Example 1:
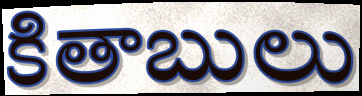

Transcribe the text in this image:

కితాబులు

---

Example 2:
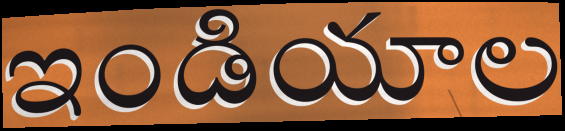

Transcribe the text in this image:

ఇండియాల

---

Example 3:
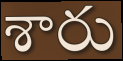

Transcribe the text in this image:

శారు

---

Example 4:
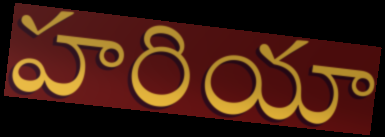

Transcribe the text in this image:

హరియా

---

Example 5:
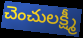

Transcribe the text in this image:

చెంచులక్ష్మీ